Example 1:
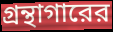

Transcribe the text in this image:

গ্রন্থাগারের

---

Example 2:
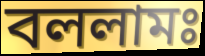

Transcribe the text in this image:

বললামঃ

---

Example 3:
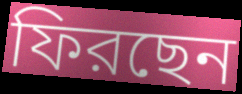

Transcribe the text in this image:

ফিরছেন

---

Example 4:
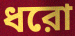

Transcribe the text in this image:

ধরো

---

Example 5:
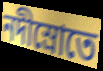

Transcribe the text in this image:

নদীস্রোতে